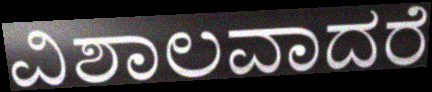
ವಿಶಾಲವಾದರೆ